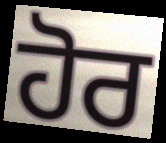
ਹੋਰ